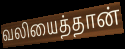
வலியைத்தான்